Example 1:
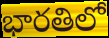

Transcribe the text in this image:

భారతిలో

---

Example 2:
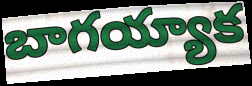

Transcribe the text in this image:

బాగయ్యాక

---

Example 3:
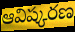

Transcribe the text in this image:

ఆవిష్కరణ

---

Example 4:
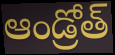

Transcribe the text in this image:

ఆండ్రోత్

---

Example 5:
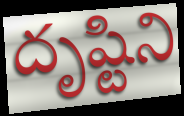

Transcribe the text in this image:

దృష్టిని